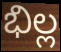
భిల్ల